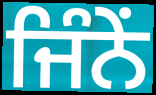
ਜਿੰਨੇਂ